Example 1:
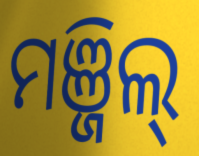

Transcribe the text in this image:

ମଞ୍ଜିଲ୍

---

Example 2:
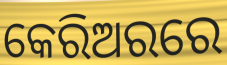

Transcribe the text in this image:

କେରିଅରରେ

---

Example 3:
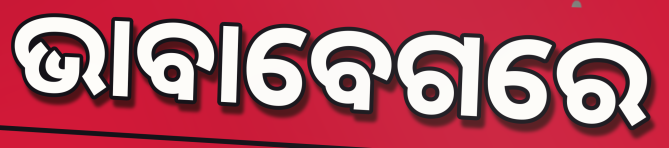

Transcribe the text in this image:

ଭାବାବେଗରେ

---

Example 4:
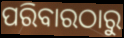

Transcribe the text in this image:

ପରିବାରଠାରୁ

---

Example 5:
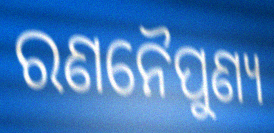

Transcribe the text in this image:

ରଣନୈପୁଣ୍ୟ